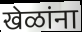
खेळांना